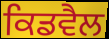
ਕਿਡਵੈਲ